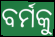
ବର୍ମକୁ